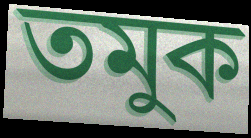
তমুক